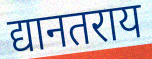
द्यानतराय